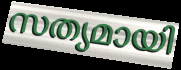
സത്യമായി